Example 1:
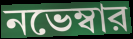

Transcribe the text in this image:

নভেম্বার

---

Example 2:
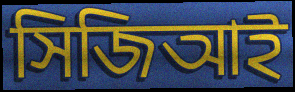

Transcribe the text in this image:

সিজিআই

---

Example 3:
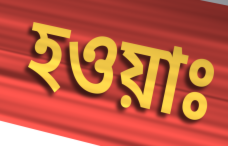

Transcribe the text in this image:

হওয়াঃ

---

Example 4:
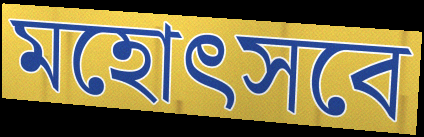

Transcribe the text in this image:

মহোৎসবে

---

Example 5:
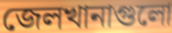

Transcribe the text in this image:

জেলখানাগুলো